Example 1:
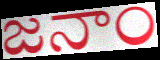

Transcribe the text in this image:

జనాం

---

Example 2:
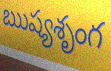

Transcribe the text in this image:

ఋష్యశృంగ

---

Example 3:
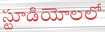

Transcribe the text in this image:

స్టూడియోలలో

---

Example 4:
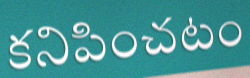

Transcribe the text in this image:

కనిపించటం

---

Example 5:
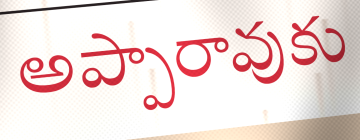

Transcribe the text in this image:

అప్పారావుకు